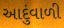
આદુંવાળી